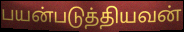
பயன்படுத்தியவன்